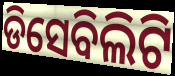
ଡିସେବିଲିଟି